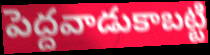
పెద్దవాడుకాబట్టి